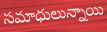
సమాధులున్నాయి